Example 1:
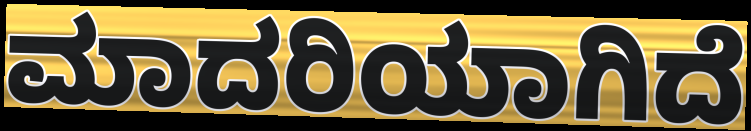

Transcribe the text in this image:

ಮಾದರಿಯಾಗಿದೆ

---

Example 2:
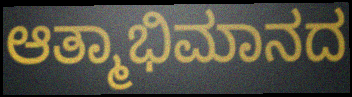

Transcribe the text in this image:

ಆತ್ಮಾಭಿಮಾನದ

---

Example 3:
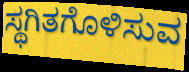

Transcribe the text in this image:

ಸ್ಥಗಿತಗೊಳಿಸುವ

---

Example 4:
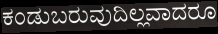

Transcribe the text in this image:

ಕಂಡುಬರುವುದಿಲ್ಲವಾದರೂ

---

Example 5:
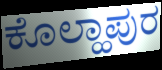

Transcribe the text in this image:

ಕೊಲ್ಹಾಪುರ